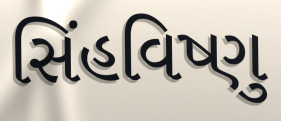
સિંહવિષ્ણુ